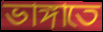
ভাঙ্গাতে